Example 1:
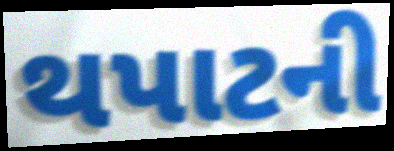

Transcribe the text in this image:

થપાટની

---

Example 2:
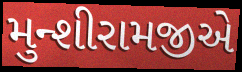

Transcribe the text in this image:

મુન્શીરામજીએ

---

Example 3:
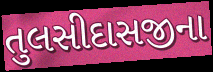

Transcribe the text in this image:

તુલસીદાસજીના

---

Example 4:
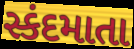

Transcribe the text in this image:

સ્કંદમાતા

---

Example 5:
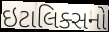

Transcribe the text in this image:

ઇટાલિક્સનો